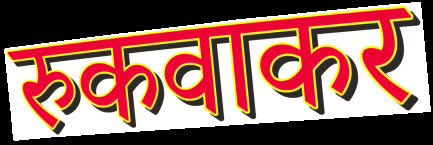
रुकवाकर